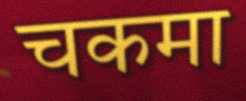
चकमा